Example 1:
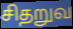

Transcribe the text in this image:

சிதறுவ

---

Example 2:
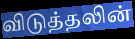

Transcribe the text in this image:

விடுத்தலின்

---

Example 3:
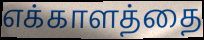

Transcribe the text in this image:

எக்காளத்தை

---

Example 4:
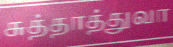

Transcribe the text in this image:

சுத்தாத்துவா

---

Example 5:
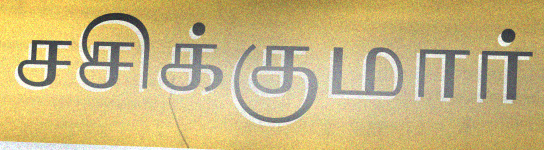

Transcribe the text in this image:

சசிக்குமார்